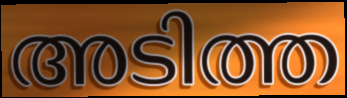
അടിത്ത